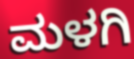
ಮಳಗಿ